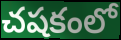
చషకంలో